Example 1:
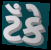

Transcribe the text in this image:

ટૅંકે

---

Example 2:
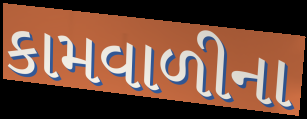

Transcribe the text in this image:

કામવાળીના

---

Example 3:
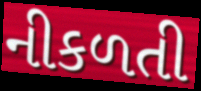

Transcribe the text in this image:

નીકળતી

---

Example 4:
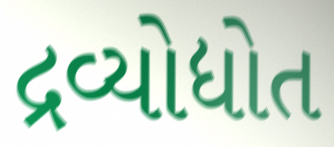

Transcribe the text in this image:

દ્રવ્યોદ્યોત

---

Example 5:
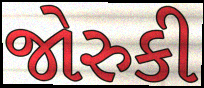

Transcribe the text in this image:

જોરુકી